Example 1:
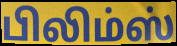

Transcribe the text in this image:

பிலிம்ஸ்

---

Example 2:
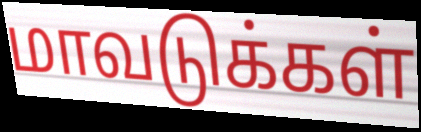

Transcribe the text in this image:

மாவடுக்கள்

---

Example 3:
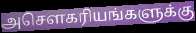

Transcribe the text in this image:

அசௌகரியங்களுக்கு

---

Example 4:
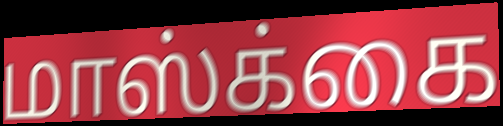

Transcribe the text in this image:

மாஸ்க்கை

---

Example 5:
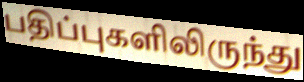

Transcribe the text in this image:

பதிப்புகளிலிருந்து